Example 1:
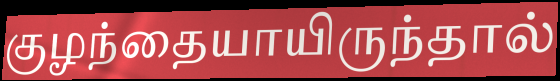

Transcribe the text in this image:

குழந்தையாயிருந்தால்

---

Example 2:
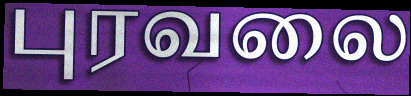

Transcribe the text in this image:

புரவலை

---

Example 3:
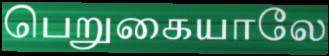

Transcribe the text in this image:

பெறுகையாலே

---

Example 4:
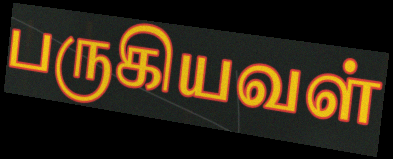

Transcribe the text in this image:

பருகியவள்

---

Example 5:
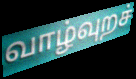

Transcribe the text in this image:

வாழ்வுறச்